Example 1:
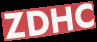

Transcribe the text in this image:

ZDHC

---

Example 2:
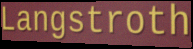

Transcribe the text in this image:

Langstroth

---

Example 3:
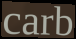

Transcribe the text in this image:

carb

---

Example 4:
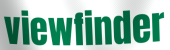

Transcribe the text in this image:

viewfinder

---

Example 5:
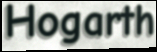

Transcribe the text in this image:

Hogarth